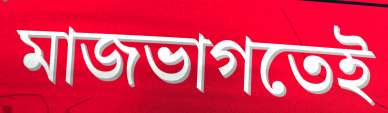
মাজভাগতেই